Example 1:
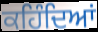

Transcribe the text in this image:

ਕਹਿੰਦਿਆਂ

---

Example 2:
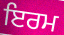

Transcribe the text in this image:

ਇਰਮ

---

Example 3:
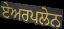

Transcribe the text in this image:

ਏਅਰਪਲੇਨ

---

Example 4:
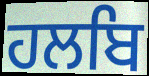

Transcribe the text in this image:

ਹਲਬਿ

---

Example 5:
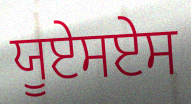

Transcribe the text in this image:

ਯੂਏਸਏਸ